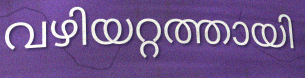
വഴിയറ്റത്തായി